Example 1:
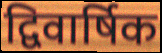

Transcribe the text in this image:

द्विवार्षिक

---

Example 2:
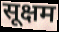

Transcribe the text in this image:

सूक्षम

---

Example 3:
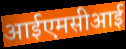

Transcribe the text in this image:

आईएमसीआई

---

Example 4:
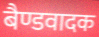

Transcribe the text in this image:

बैण्डवादक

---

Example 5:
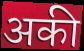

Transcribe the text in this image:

अकी